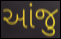
આંજુ